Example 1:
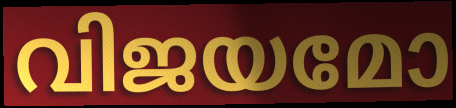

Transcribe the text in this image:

വിജയമോ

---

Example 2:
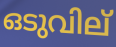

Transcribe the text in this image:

ഒടുവില്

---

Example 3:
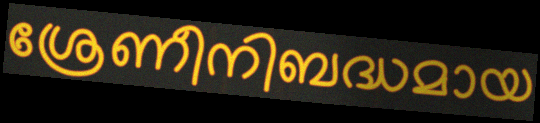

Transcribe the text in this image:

ശ്രേണീനിബദ്ധമായ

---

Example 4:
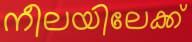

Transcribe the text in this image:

നീലയിലേക്ക്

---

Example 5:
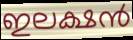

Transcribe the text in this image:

ഇലക്ഷൻ